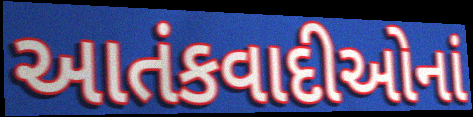
આતંકવાદીઓનાં